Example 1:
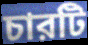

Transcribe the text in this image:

চারটি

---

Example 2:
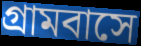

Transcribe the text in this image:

গ্রামবাসে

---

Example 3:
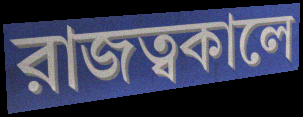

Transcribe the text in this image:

রাজত্বকালে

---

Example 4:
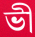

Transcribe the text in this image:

ভী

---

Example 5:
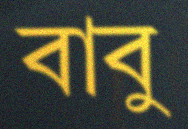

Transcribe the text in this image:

বাবু